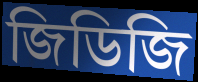
জিডিজি